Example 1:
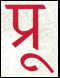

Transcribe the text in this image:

प्रू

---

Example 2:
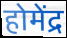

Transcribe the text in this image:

होमेंद्र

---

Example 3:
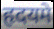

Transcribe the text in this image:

हृदयमे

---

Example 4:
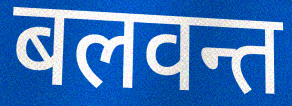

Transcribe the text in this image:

बलवन्त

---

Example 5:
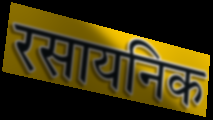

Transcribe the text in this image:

रसायनिक